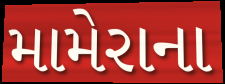
મામેરાના